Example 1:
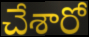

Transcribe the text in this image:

చేశారో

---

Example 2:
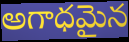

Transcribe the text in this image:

అగాధమైన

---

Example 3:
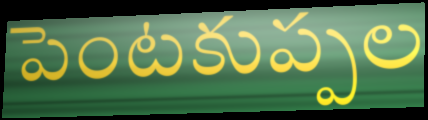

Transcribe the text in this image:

పెంటకుప్పల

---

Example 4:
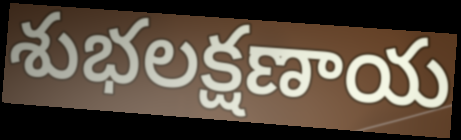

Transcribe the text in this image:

శుభలక్షణాయ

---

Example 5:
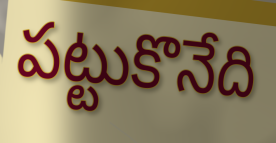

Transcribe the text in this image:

పట్టుకొనేది